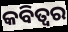
କବିତ୍ଵର